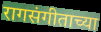
रागसंगीताच्या